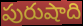
పురుషాది